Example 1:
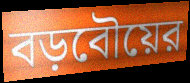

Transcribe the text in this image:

বড়বৌয়ের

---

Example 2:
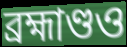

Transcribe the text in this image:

ব্রহ্মাণ্ডও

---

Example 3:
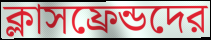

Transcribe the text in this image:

ক্লাসফ্রেন্ডদের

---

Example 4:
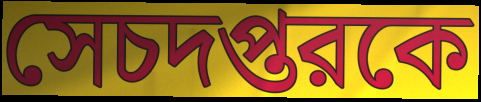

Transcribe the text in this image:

সেচদপ্তরকে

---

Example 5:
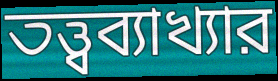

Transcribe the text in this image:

তত্ত্বব্যাখ্যার